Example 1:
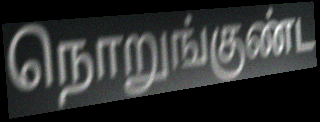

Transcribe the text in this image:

நொறுங்குண்ட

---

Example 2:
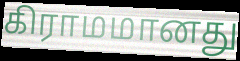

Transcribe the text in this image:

கிராமமானது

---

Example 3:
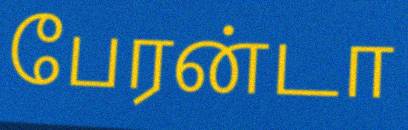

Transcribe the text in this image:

பேரன்டா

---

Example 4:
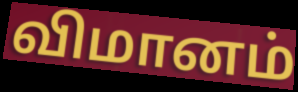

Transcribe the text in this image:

விமானம்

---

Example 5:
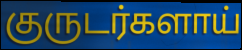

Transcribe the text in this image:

குருடர்களாய்